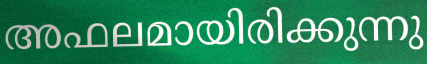
അഫലമായിരിക്കുന്നു